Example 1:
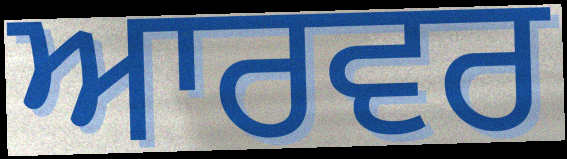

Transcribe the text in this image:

ਆਰਵਰ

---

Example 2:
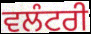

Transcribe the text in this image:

ਵਲੰਟਰੀ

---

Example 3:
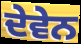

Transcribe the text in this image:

ਦੇਵੇਨ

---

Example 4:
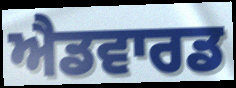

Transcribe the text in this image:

ਐਡਵਾਰਡ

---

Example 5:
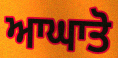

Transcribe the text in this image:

ਆਘਾਤੋ